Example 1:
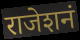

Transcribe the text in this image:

राजेशनं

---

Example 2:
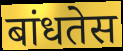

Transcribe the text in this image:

बांधतेस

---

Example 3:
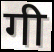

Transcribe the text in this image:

गी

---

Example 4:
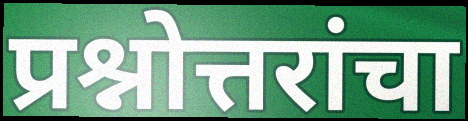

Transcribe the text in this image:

प्रश्नोत्तरांचा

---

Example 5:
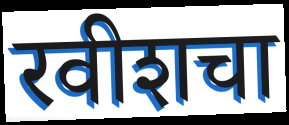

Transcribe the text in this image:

रवीशचा